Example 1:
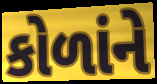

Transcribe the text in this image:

કોળાંને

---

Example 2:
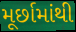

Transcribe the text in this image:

મૂર્છામાંથી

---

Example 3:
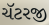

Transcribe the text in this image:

ચૅટરજી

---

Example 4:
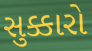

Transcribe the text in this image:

સુક્કારો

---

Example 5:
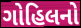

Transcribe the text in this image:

ગોહિલનો